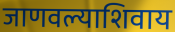
जाणवल्याशिवाय